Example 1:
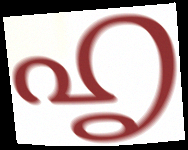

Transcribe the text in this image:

ഹൃ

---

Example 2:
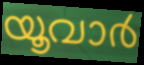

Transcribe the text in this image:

യൂവാർ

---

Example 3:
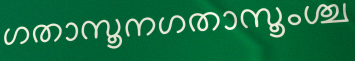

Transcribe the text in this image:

ഗതാസൂനഗതാസൂംശ്ച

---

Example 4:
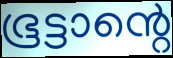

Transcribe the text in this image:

ഭൂട്ടാന്റെ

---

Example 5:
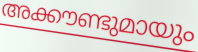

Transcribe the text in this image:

അക്കൗണ്ടുമായും